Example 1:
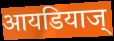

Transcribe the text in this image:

आयडियाज्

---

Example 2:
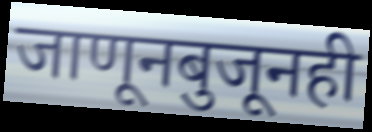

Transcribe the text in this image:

जाणूनबुजूनही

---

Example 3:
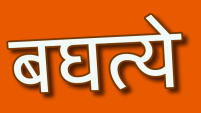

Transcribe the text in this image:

बघत्ये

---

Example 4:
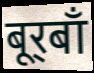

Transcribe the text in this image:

बूर्‌बाँ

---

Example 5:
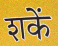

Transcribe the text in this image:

शकें